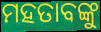
ମହତାବଙ୍କୁ